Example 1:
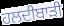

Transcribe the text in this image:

ਹਲਦੀਬਾੜੀ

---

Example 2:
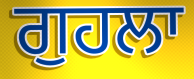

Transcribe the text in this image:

ਗੁਹਲਾ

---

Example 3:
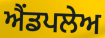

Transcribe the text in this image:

ਐਂਡਪਲੇਅ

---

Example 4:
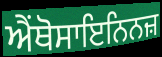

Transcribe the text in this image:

ਐਂਥੋਸਾਇਨਿਨਜ਼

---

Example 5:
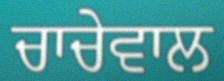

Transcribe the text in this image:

ਚਾਚੇਵਾਲ